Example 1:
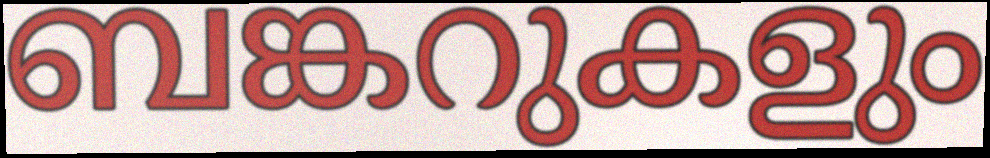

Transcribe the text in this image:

ബങ്കറുകളും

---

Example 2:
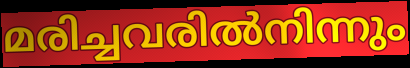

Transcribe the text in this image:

മരിച്ചവരിൽനിന്നും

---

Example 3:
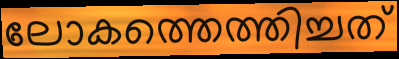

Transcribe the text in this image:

ലോകത്തെത്തിച്ചത്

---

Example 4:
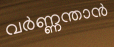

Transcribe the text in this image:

വർണ്ണന്താൻ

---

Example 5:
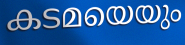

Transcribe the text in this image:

കടമയെയും